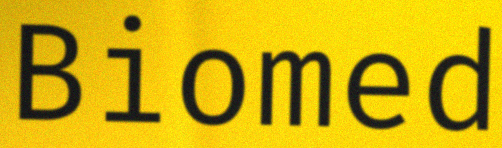
Biomed